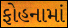
ફોહનામાં